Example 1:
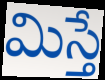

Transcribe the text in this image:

మిస్తే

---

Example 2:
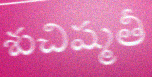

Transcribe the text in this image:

శుచిష్మతీ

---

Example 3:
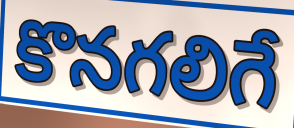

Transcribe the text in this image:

కొనగలిగే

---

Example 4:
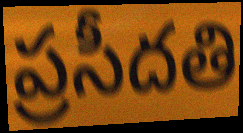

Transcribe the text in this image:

ప్రసీదతి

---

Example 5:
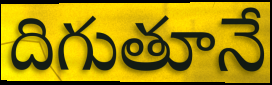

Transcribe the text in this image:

దిగుతూనే